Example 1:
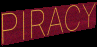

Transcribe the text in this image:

PIRACY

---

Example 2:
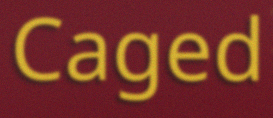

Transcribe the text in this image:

Caged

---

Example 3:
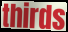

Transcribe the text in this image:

thirds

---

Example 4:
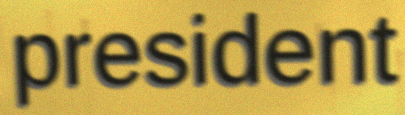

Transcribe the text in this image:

president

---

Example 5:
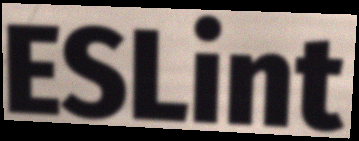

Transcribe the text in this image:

ESLint